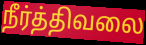
நீர்த்திவலை